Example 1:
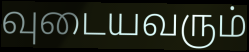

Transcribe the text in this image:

வுடையவரும்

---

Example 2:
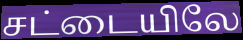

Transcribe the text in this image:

சட்டையிலே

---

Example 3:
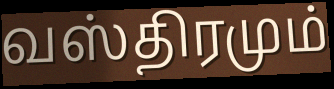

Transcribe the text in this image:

வஸ்திரமும்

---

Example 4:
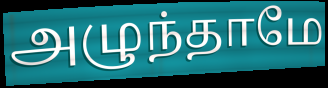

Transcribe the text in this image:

அழுந்தாமே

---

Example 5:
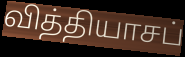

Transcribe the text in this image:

வித்தியாசப்